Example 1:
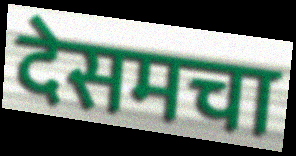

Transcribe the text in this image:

देसमचा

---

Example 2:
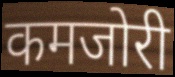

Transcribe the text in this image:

कमजोरी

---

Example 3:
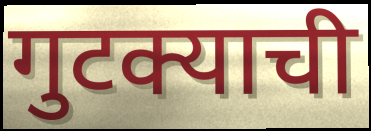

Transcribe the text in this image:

गुटक्याची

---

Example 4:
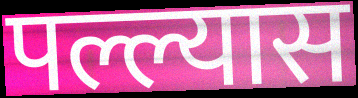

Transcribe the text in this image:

पल्ल्यास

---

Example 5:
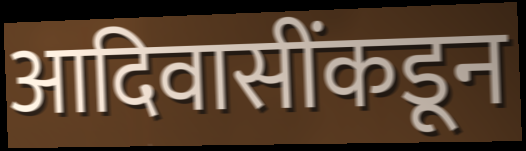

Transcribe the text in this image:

आदिवासींकडून